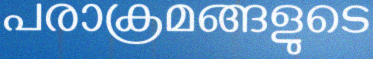
പരാക്രമങ്ങളുടെ